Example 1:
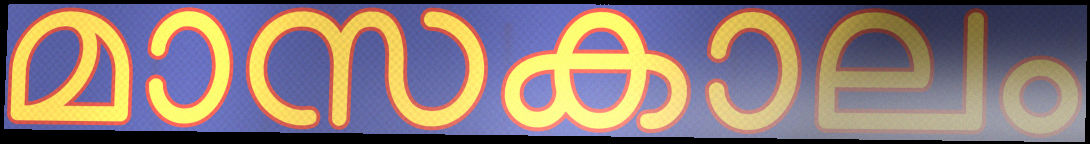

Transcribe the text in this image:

മാസകാലം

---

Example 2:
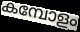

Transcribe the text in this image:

കമ്പോളം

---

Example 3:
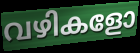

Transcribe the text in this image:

വഴികളോ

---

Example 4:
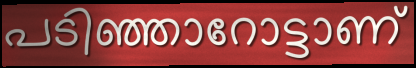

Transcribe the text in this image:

പടിഞ്ഞാറോട്ടാണ്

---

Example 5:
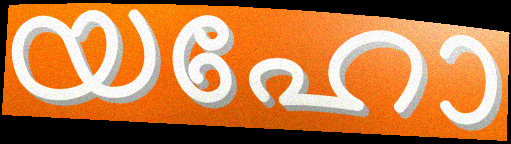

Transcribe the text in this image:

യഹോ